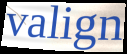
valign